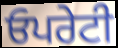
ਓਪਰੇਟੀ